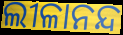
ଲୀଳାନନ୍ଦ